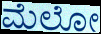
ಮೆಲೋ